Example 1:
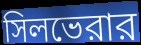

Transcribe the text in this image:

সিলভেরার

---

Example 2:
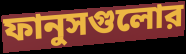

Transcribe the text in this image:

ফানুসগুলোর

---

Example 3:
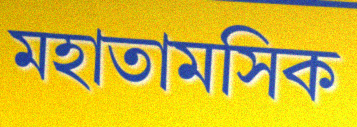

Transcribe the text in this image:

মহাতামসিক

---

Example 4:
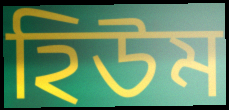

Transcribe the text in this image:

হিউম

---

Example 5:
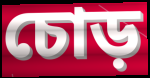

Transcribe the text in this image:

চোড়